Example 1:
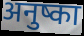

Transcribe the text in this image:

अनुष्का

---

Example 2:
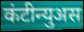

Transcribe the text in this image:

कंटीन्युअस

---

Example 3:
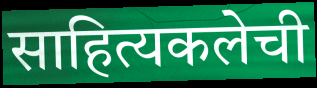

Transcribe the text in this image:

साहित्यकलेची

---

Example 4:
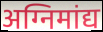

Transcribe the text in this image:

अग्निमांद्य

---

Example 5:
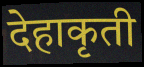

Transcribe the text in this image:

देहाकृती